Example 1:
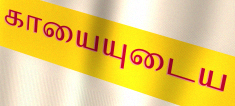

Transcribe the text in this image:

காயையுடைய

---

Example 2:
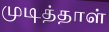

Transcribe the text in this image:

முடித்தாள்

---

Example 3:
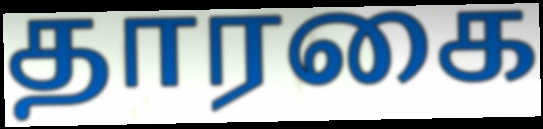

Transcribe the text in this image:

தாரகை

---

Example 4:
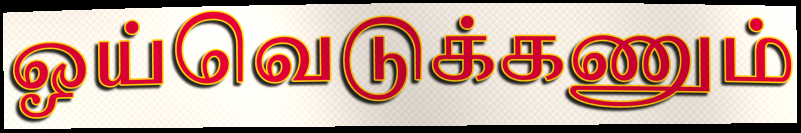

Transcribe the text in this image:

ஓய்வெடுக்கணும்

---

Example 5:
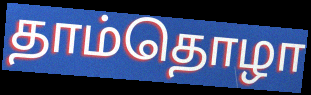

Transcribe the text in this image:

தாம்தொழா